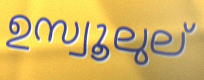
ഉസ്വൂലുല്